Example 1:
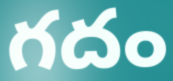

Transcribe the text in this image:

గదం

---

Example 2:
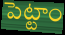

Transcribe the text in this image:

పెట్టాం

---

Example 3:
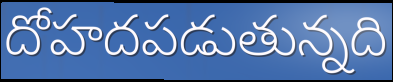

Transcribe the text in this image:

దోహదపడుతున్నది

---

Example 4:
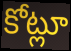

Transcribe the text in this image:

కోట్లూ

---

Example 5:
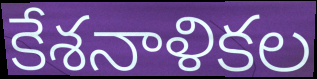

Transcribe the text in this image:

కేశనాళికల